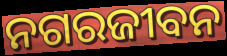
ନଗରଜୀବନ